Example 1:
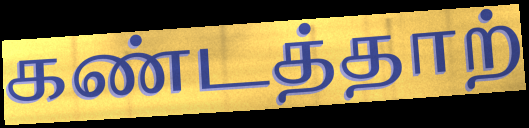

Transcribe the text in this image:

கண்டத்தாற்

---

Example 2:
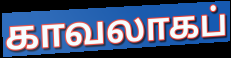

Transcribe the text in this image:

காவலாகப்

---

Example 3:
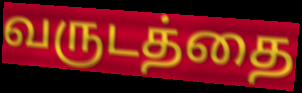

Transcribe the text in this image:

வருடத்தை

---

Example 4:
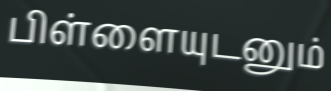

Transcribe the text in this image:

பிள்ளையுடனும்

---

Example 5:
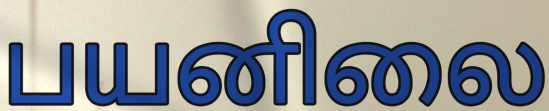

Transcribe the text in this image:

பயனிலை